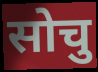
सोचु